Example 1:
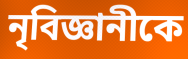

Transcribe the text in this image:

নৃবিজ্ঞানীকে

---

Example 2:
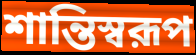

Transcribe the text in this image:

শান্তিস্বরূপ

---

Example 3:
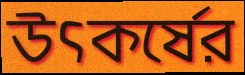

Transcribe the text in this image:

উৎকর্ষের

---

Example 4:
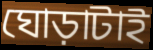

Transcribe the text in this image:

ঘোড়াটাই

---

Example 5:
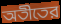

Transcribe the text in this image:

অতীতের